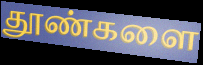
தூண்களை